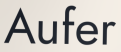
Aufer